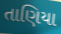
તાણિયા